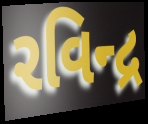
રવિન્દ્ર